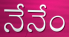
నేనేం